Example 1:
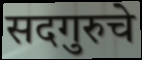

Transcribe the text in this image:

सदगुरुचे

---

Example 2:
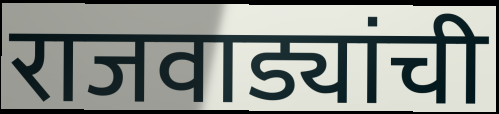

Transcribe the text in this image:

राजवाड्यांची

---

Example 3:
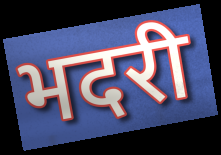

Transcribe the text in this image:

भदरी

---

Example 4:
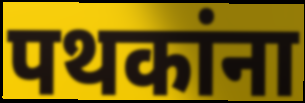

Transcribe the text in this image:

पथकांना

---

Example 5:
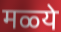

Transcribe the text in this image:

मळ्ये